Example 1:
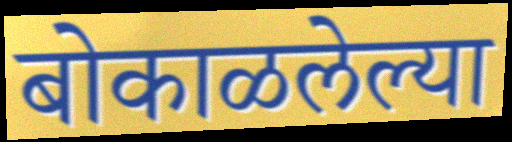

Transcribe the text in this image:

बोकाळलेल्या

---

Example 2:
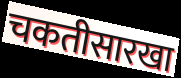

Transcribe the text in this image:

चकतीसारखा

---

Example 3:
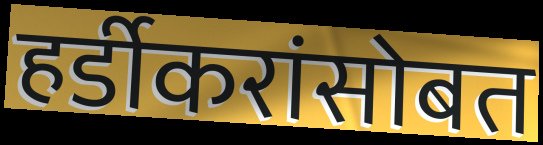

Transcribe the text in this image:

हर्डीकरांसोबत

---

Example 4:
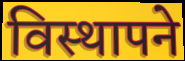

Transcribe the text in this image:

विस्थापने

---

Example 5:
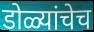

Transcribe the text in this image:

डोळ्यांचेच